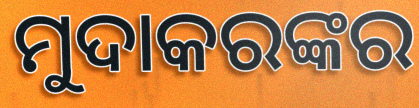
ମୁଦାକରଙ୍କର